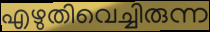
എഴുതിവെച്ചിരുന്ന